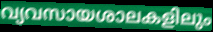
വ്യവസായശാലകളിലും